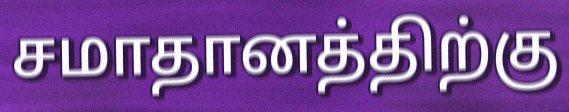
சமாதானத்திற்கு